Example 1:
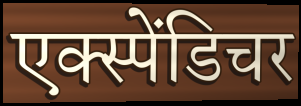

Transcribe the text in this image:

एक्स्पेंडिचर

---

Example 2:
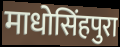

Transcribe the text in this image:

माधोसिंहपुरा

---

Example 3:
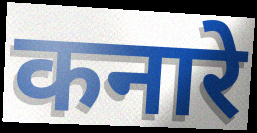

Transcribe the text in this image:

कनारे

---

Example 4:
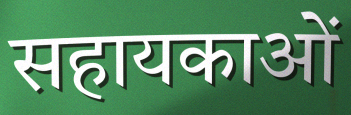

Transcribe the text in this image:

सहायकाओं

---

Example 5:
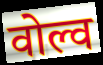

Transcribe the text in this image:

वोल्व